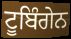
ਟੂਬਿੰਗੇਨ